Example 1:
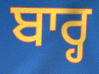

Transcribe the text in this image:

ਬਾਰ੍ਹ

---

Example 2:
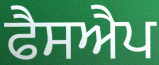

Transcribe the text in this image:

ਫੈਸਐਪ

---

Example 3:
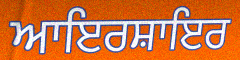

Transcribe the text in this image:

ਆਇਰਸ਼ਾਇਰ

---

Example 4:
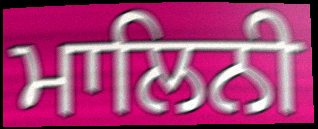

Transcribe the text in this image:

ਮਾਲਿਨੀ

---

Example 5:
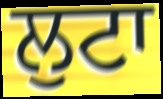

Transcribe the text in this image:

ਲੁਟਾ